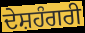
ਦੇਸ਼ਹੰਗਰੀ